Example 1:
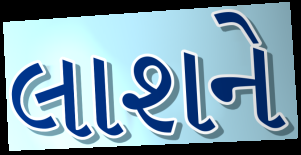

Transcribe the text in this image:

લાશને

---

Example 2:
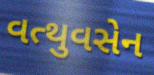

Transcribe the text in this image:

વત્થુવસેન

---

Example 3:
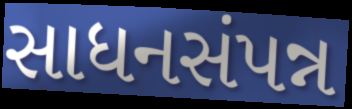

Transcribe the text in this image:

સાધનસંપન્ન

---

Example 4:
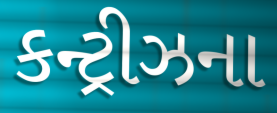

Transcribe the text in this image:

કન્ટ્રીઝના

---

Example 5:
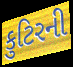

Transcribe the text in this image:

કુટિરની